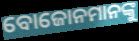
ବୋଜୋନମାନଙ୍କୁ